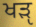
ਖੜੵ